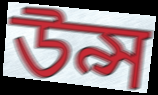
উন্স